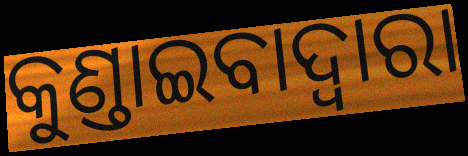
କୁଣ୍ଡାଇବାଦ୍ୱାରା